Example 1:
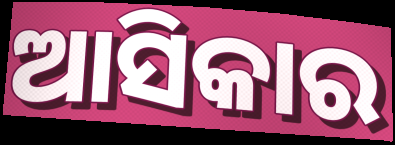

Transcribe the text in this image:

ଆସିକାର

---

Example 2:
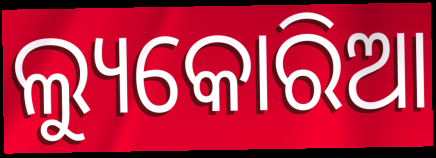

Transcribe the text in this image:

ଲ୍ୟୁକୋରିଆ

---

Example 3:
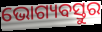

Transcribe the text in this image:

ଭୋଗ୍ୟବସ୍ତୁର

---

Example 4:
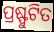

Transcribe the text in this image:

ପ୍ରଷ୍ଫୁଟିତ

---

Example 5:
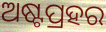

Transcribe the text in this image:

ଅଷ୍ଟପ୍ରହର